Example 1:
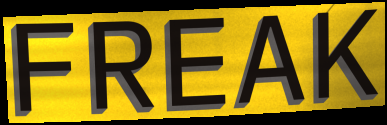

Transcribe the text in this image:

FREAK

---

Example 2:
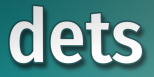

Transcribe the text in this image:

dets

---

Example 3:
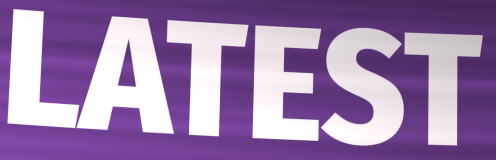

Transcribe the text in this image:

LATEST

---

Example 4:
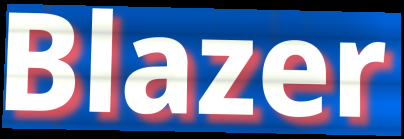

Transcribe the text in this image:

Blazer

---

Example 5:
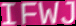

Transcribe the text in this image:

IFWJ